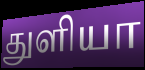
துளியா